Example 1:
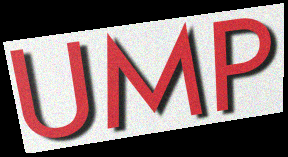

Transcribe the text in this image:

UMP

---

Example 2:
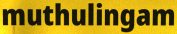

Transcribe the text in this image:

muthulingam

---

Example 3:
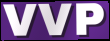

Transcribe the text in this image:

VVP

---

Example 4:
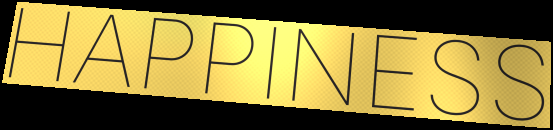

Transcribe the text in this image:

HAPPINESS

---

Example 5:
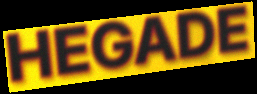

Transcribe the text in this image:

HEGADE